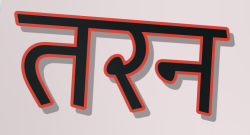
तरन